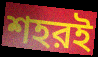
শহরই